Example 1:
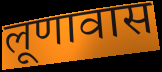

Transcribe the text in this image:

लूणावास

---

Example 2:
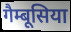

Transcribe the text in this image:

गैम्बूसिया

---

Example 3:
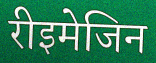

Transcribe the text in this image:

रीइमेजिन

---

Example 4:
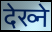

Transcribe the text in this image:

देख्ने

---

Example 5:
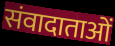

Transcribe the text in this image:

संवादाताओं